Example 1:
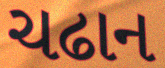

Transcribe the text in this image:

ચઢાન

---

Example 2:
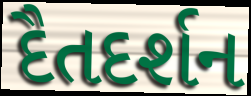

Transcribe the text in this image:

દૈતદર્શન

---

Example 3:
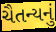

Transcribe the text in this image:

ચૈતન્યનું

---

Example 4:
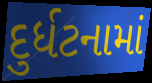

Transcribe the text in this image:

દુર્ધટનામાં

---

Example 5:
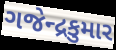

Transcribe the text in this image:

ગજેન્દ્રકુમાર